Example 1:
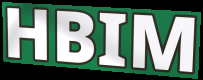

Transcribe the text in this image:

HBIM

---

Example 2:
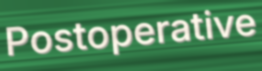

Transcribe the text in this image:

Postoperative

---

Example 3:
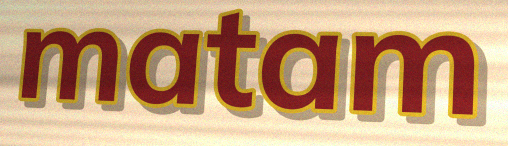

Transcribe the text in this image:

matam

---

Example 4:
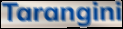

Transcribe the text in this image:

Tarangini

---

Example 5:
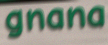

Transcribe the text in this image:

gnana